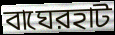
বাঘেরহাট